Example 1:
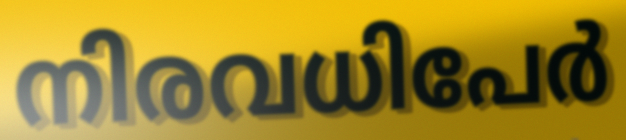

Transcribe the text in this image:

നിരവധിപേർ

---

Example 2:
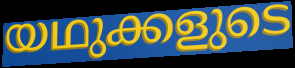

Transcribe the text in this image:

യഥുക്കളുടെ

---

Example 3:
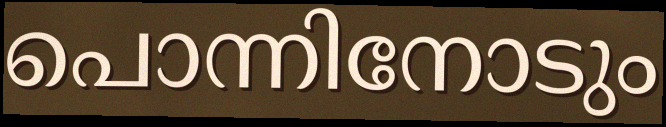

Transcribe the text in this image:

പൊന്നിനോടും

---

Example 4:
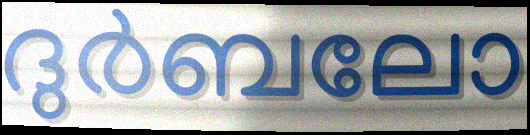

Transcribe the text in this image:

ദുർബലോ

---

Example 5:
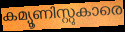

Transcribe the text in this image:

കമ്യൂണിസ്റ്റുകാരെ